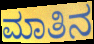
ಮಾತಿನ